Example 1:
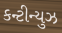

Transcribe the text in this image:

કન્ટીન્યુઝ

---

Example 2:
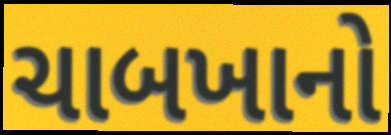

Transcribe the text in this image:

ચાબખાનો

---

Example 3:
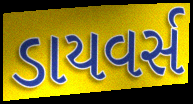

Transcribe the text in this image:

ડાયવર્સ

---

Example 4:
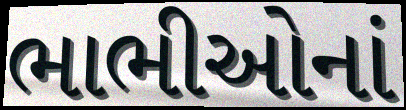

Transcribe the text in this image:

ભાભીઓનાં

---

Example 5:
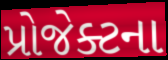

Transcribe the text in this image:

પ્રોજેક્ટના